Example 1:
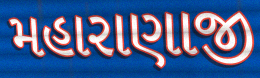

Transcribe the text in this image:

મહારાણાજી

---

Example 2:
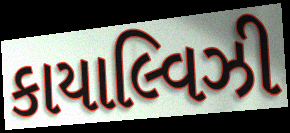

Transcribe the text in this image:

કાયાલ્વિઝી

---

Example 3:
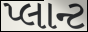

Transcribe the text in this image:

પ્લાન્ટ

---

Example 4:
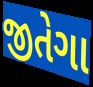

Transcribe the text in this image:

જીતેગા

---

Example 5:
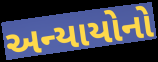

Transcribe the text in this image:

અન્યાયોનો